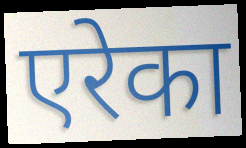
एरेका